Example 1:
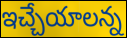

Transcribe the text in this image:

ఇచ్చేయాలన్న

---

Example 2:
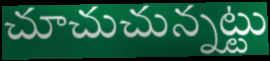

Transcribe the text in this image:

చూచుచున్నట్టు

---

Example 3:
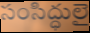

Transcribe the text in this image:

సంసిద్ధులై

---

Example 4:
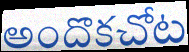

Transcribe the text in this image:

అందొకచోట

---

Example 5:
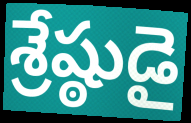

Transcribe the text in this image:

శ్రేష్ఠుడై